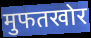
मुफतखोर